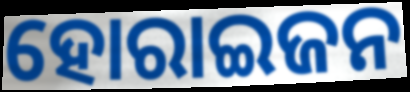
ହୋରାଇଜନ